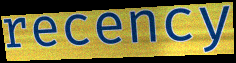
recency